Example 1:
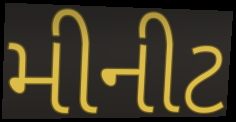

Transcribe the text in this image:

મીનીટ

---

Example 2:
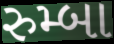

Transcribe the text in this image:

રુમ્બા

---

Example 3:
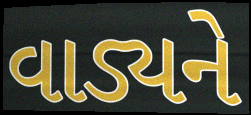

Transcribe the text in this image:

વાડ્યને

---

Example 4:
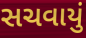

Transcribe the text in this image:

સચવાયું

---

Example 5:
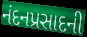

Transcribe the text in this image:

નંદનપ્રસાદની